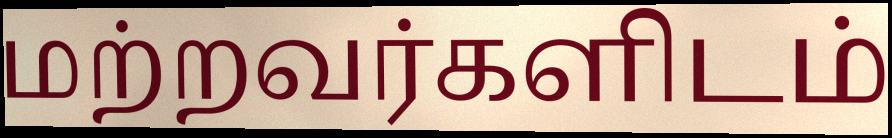
மற்றவர்களிடம்